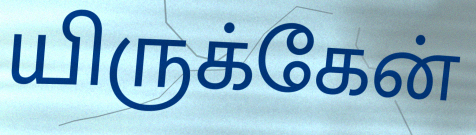
யிருக்கேன்